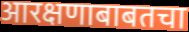
आरक्षणाबाबतचा